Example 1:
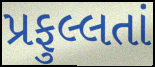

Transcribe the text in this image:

પ્રફુલ્લતાં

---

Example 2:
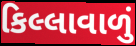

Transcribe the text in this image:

કિલ્લાવાળું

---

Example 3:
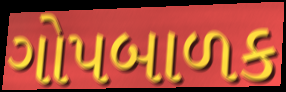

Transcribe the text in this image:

ગોપબાળક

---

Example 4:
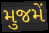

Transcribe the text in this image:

મુજમેં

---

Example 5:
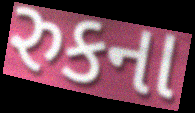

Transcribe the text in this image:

રુકના